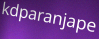
kdparanjape